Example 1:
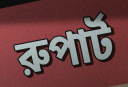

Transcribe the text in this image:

রুপার্ট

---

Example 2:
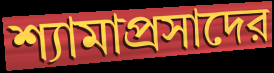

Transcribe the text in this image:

শ্যামাপ্রসাদের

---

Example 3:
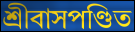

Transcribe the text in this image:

শ্রীবাসপণ্ডিত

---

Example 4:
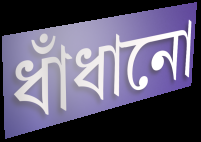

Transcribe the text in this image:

ধাঁধানো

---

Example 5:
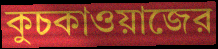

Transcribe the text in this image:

কুচকাওয়াজের